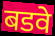
बडवे